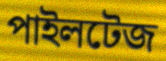
পাইলটেজ